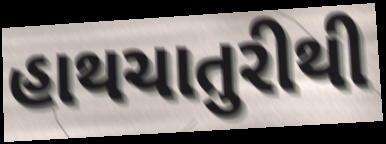
હાથચાતુરીથી